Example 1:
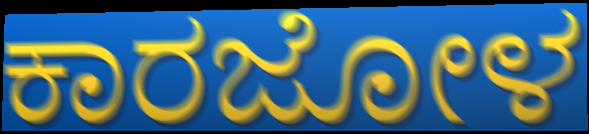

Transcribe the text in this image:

ಕಾರಜೋಳ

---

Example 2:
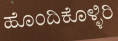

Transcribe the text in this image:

ಹೊಂದಿಕೊಳ್ಳಿರಿ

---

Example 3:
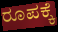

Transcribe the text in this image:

ರೂಪಕ್ಕೆ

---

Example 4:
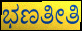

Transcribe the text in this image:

ಭಣತೀತಿ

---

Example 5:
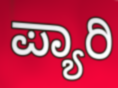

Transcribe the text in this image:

ಪ್ಯಾರಿ